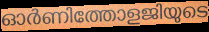
ഓർണിത്തോളജിയുടെ